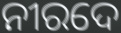
ନୀରଦେ